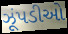
ઝૂંપડીઓ